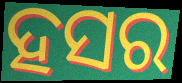
ହସର